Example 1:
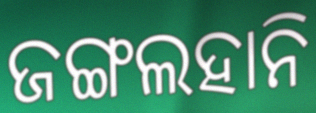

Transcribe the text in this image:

ଜଙ୍ଗଲହାନି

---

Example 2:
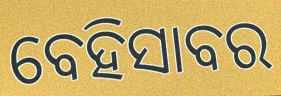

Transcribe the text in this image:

ବେହିସାବର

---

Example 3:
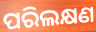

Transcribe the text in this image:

ପରିଲକ୍ଷଣ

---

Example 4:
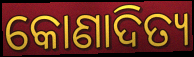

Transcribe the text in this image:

କୋଣାଦିତ୍ୟ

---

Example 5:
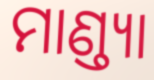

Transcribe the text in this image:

ମାଣ୍ଡ୍ୟା